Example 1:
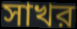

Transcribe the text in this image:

সাখর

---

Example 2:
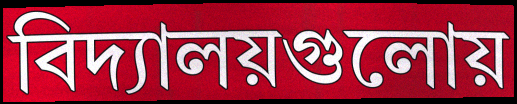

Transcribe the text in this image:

বিদ্যালয়গুলোয়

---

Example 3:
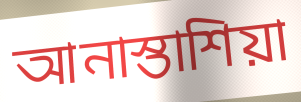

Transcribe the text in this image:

আনাস্তাশিয়া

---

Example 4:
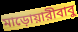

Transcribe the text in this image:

মাড়োয়ারীবাবু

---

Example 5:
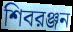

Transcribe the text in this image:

শিবরঞ্জন